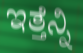
ಇತ್ತೆನ್ನಿ